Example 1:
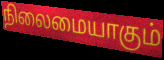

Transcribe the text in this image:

நிலைமையாகும்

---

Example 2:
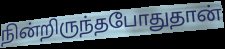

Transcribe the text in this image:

நின்றிருந்தபோதுதான்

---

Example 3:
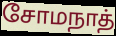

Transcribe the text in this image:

சோமநாத்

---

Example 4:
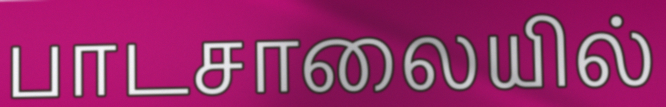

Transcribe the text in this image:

பாடசாலையில்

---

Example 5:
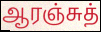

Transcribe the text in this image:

ஆரஞ்சுத்